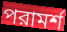
পরামর্শ